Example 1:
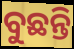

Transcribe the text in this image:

ବୁଛନ୍ତି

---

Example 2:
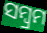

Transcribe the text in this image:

ସମ୍ବ୍ରମ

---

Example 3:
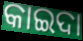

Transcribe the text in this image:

କାଇଦା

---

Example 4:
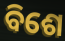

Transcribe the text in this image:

ବିଶେ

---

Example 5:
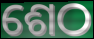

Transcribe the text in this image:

ଶେଠ